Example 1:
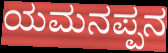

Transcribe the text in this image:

ಯಮನಪ್ಪನ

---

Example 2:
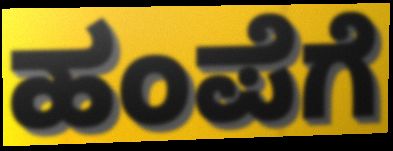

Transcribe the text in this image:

ಹಂಪೆಗೆ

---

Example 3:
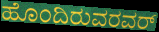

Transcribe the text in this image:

ಹೊಂದಿರುವರವರ್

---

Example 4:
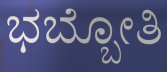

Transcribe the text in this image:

ಭಬ್ಬೋತಿ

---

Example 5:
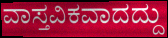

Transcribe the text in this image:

ವಾಸ್ತವಿಕವಾದದ್ದು